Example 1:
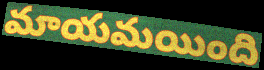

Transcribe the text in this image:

మాయమయింది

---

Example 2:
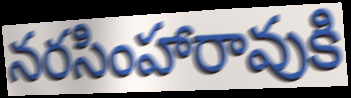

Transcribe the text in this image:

నరసింహారావుకి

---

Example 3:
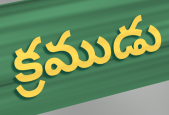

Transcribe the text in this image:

క్రముడు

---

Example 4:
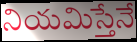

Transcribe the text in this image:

నియమిస్తేనే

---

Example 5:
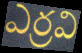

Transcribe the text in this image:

ఎర్రవి